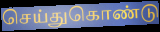
செய்துகொண்டு